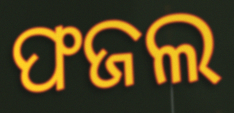
ଫଜଲ